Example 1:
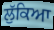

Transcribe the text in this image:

ਲੁੱਕਿਆ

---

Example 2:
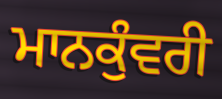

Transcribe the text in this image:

ਮਾਨਕੁੰਵਰੀ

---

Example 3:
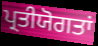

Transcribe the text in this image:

ਪ੍ਰਤੀਯੋਗਤਾਂ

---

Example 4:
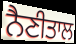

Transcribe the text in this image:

ਨੈਣੀਤਾਲ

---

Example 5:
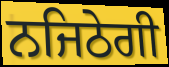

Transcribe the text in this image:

ਨਜਿਠੇਗੀ